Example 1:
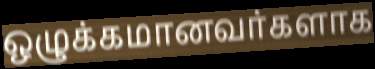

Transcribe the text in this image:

ஒழுக்கமானவர்களாக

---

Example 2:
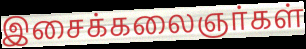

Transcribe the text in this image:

இசைக்கலைஞர்கள்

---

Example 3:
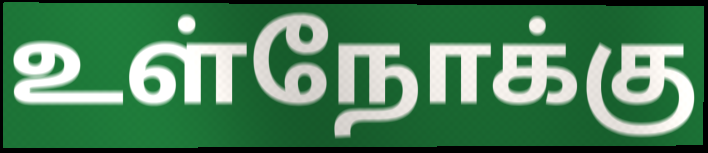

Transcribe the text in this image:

உள்நோக்கு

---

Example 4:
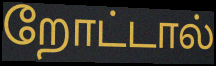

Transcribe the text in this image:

றோட்டால்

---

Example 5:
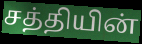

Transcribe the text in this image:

சத்தியின்